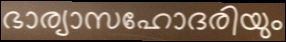
ഭാര്യാസഹോദരിയും